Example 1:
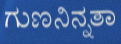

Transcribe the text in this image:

ಗುಣನಿನ್ನತಾ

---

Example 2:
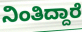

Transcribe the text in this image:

ನಿಂತಿದ್ದಾರೆ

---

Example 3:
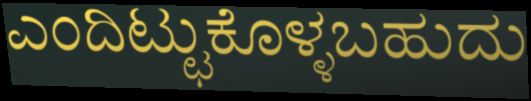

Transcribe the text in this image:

ಎಂದಿಟ್ಟುಕೊಳ್ಳಬಹುದು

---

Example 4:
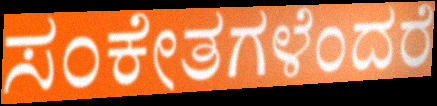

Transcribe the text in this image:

ಸಂಕೇತಗಳೆಂದರೆ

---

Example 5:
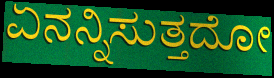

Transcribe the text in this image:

ಏನನ್ನಿಸುತ್ತದೋ